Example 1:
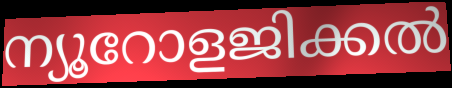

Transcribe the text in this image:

ന്യൂറോളജിക്കൽ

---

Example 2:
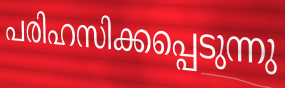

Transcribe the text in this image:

പരിഹസിക്കപ്പെടുന്നു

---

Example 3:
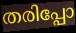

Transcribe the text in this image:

തരിപ്പോ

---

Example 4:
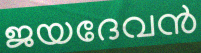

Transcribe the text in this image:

ജയദേവൻ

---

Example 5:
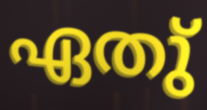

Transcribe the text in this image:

ഏതു്